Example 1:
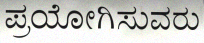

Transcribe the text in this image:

ಪ್ರಯೋಗಿಸುವರು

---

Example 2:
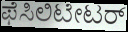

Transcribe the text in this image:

ಫೆಸಿಲಿಟೇಟರ್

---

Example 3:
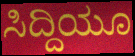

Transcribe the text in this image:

ಸಿದ್ದಿಯೂ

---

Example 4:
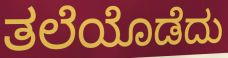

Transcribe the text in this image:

ತಲೆಯೊಡೆದು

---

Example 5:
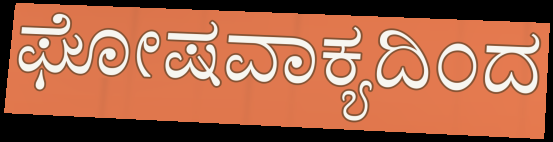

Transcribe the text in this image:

ಘೋಷವಾಕ್ಯದಿಂದ